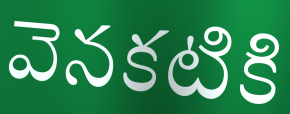
వెనకటికి